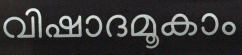
വിഷാദമൂകാം